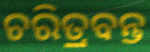
ଚରିତ୍ରବନ୍ତ